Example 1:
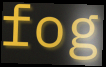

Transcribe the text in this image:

fog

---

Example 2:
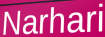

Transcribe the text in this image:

Narhari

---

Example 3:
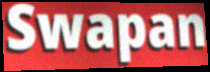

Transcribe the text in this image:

Swapan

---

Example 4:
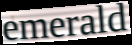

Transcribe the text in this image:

emerald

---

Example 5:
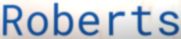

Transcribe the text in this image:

Roberts